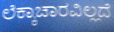
ಲೆಕ್ಕಾಚಾರವಿಲ್ಲದೆ